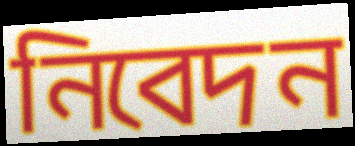
নিবেদন